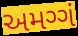
અમગ્ગં